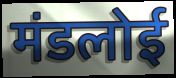
मंडलोई